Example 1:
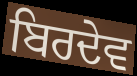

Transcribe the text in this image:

ਬਿਰਦੇਵ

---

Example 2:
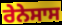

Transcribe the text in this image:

ਰੇਨੇਸਾਸ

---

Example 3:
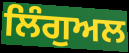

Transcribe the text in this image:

ਲਿੰਗੁਅਲ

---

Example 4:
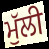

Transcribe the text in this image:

ਮੁੱਲੀ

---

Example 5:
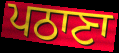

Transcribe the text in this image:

ਪਠਾਣਾ